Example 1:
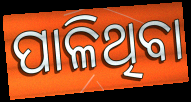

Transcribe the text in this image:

ପାଳିଥିବା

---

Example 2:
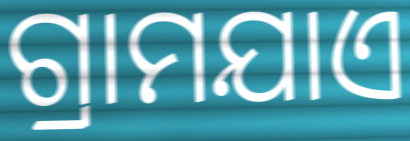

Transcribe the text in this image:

ଗ୍ରାମଯାଏ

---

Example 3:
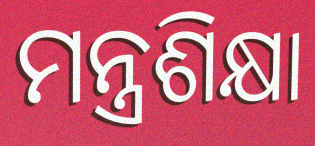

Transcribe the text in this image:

ମନ୍ତ୍ରଶିକ୍ଷା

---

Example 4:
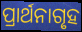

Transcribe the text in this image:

ପ୍ରାର୍ଥନାଗୃହ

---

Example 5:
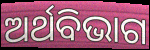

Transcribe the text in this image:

ଅର୍ଥବିଭାଗ